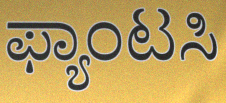
ಫ್ಯಾಂಟಸಿ